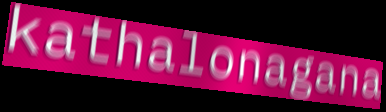
kathalonagana